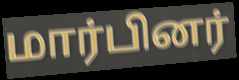
மார்பினர்